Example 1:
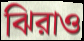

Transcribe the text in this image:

ঝিরাও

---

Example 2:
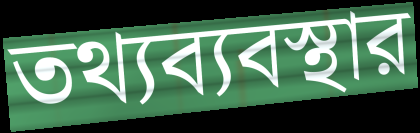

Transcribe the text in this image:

তথ্যব্যবস্থার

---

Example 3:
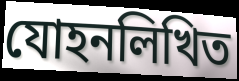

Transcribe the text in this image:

যোহনলিখিত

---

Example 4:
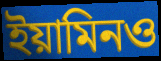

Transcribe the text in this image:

ইয়ামিনও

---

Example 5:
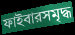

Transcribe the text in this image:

ফাইবারসমৃদ্ধ